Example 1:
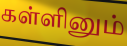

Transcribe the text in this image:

கள்ளினும்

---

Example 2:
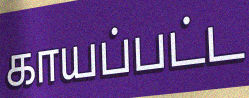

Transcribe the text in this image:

காயப்பட்ட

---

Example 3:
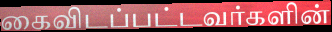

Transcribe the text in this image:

கைவிடப்பட்டவர்களின்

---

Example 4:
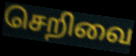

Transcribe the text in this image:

செறிவை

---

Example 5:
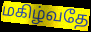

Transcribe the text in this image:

மகிழ்வதே